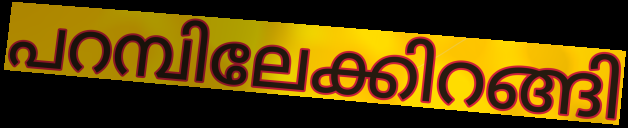
പറമ്പിലേക്കിറങ്ങി